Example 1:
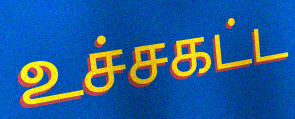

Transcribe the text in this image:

உச்சகட்ட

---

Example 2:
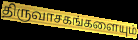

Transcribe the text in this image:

திருவாசகங்களையும்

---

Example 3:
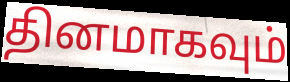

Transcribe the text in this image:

தினமாகவும்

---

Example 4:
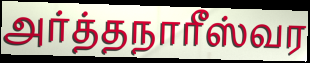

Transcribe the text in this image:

அர்த்தநாரீஸ்வர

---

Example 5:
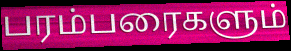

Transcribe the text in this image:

பரம்பரைகளும்